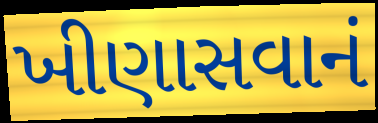
ખીણાસવાનં